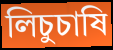
লিচুচাষি